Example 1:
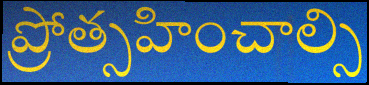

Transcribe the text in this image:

ప్రోత్సహించాల్సి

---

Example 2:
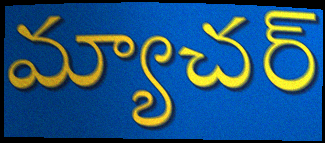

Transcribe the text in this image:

మ్యాచర్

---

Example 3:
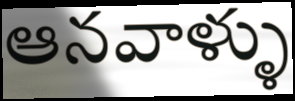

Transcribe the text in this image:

ఆనవాళ్ళు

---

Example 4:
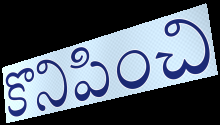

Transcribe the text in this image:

కొనిపించి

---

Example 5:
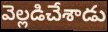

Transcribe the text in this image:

వెల్లడిచేశాడు